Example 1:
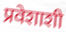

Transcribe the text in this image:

प्रवेशाशी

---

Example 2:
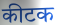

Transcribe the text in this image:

कीटक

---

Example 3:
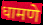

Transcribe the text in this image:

धामणे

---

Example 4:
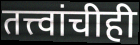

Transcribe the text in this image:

तत्त्वांचीही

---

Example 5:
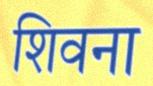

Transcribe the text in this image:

शिवना